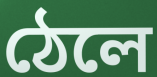
ঠেলে